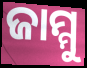
ଜାମ୍ମୁ